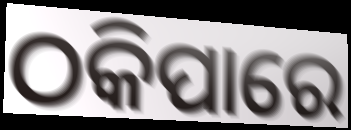
ଠକିପାରେ